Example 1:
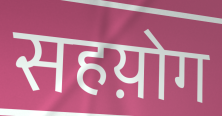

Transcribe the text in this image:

सहय़ोग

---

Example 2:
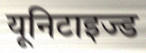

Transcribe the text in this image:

यूनिटाइज्ड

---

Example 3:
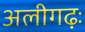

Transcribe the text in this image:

अलीगढ़ः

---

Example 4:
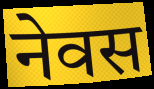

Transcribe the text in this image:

नेवस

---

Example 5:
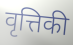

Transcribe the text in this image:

वृत्तिकी